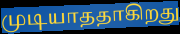
முடியாததாகிறது